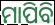
ମାପିବି